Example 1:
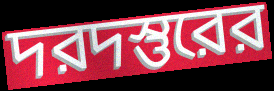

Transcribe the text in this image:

দরদস্তুরের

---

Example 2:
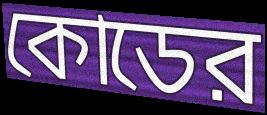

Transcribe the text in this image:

কোডের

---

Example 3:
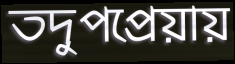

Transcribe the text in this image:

তদুপপ্রেয়ায়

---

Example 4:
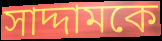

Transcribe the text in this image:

সাদ্দামকে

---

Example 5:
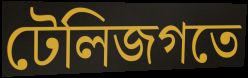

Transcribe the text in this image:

টেলিজগতে